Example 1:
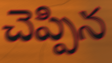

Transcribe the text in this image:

చెప్పిన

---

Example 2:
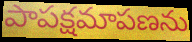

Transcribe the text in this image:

పాపక్షమాపణను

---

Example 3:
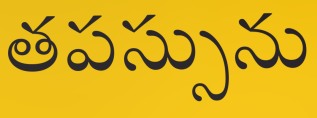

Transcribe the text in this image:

తపస్సును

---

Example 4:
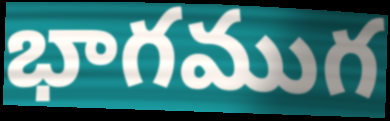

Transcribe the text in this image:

భాగముగ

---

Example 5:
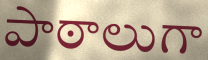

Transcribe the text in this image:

పాఠాలుగా